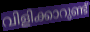
വിളിക്കാറുണ്ട്